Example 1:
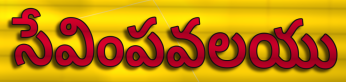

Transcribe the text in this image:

సేవింపవలయు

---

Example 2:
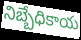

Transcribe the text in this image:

నిబ్బేధికాయ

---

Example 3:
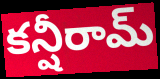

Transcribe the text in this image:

కన్షీరామ్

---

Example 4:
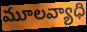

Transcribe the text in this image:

మూలవ్యాధి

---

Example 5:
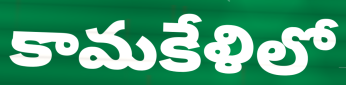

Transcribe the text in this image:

కామకేళిలో